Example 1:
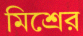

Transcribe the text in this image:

মিশ্রের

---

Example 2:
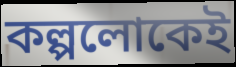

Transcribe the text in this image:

কল্পলোকেই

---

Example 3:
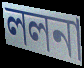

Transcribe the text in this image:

ললনা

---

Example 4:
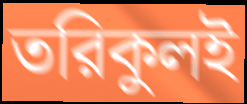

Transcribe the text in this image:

তরিকুলই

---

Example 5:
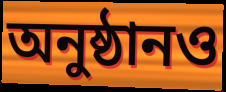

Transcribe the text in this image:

অনুষ্ঠানও